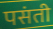
पसंती